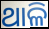
ଥାଳି